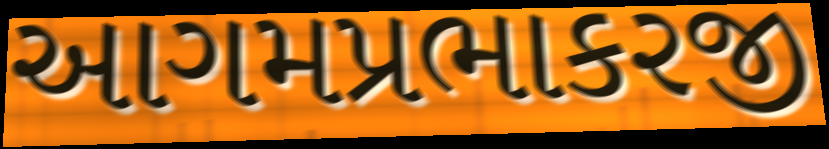
આગમપ્રભાકરજી